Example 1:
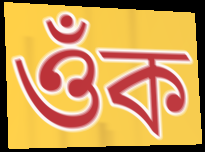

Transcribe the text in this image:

ওঁক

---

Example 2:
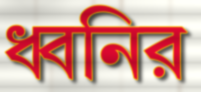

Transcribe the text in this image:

ধ্বনির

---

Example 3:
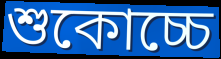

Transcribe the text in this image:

শুকোচ্চে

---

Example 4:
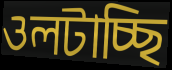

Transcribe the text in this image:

ওলটাচ্ছি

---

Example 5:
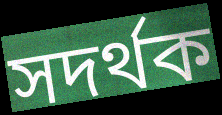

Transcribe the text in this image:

সদর্থক